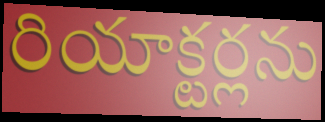
రియాక్టర్లను